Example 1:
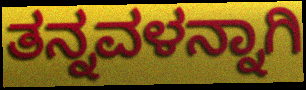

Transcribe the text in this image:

ತನ್ನವಳನ್ನಾಗಿ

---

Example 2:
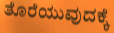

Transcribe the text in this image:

ತೊರೆಯುವುದಕ್ಕೆ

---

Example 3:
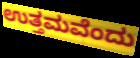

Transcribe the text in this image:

ಉತ್ತಮವೆಂದು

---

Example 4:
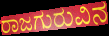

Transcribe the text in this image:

ರಾಜಗುರುವಿನ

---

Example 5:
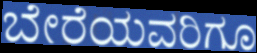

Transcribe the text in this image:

ಬೇರೆಯವರಿಗೂ